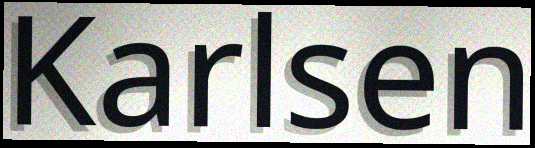
Karlsen